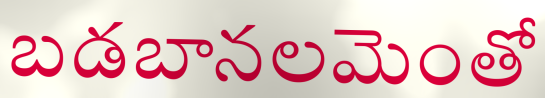
బడబానలమెంతో